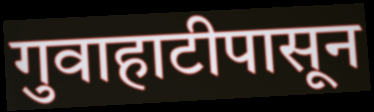
गुवाहाटीपासून